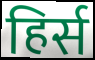
हिर्स